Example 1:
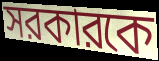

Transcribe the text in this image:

সরকারকে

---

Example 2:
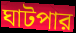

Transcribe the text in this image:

ঘাটপার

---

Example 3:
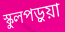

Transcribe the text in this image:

স্কুলপড়ুয়া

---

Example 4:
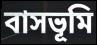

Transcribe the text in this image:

বাসভূমি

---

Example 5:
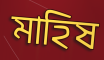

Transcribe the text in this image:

মাহিষ